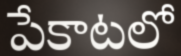
పేకాటలో